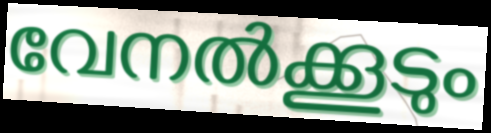
വേനൽക്കൂടും